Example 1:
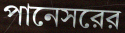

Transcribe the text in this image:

পানেসরের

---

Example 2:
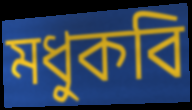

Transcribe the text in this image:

মধুকবি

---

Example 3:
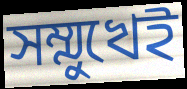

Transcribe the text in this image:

সম্মুখেই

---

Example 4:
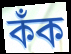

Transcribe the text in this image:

কঁক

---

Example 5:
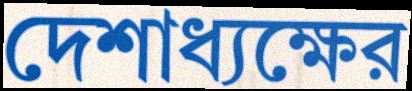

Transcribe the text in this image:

দেশাধ্যক্ষের